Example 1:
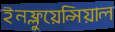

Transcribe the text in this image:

ইনফ্লুয়েন্সিয়াল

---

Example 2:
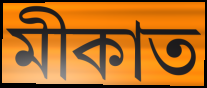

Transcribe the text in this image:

মীকাত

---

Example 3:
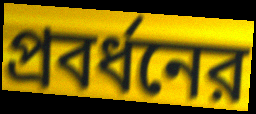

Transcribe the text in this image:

প্রবর্ধনের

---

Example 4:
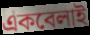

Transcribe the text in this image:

একবেলাই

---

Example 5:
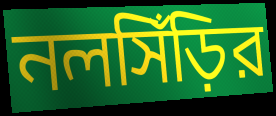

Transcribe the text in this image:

নলসিঁড়ির